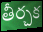
తీర్చక